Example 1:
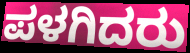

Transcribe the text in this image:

ಪಳಗಿದರು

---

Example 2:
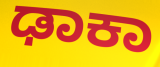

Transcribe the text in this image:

ಢಾಕಾ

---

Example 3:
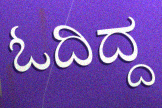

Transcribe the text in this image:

ಓದಿದ್ದ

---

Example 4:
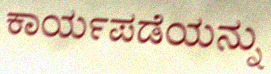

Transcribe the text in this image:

ಕಾರ್ಯಪಡೆಯನ್ನು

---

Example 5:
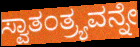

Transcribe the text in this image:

ಸ್ವಾತಂತ್ರ್ಯವನ್ನೇ